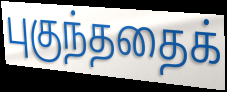
புகுந்ததைக்